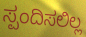
ಸ್ಪಂದಿಸಲಿಲ್ಲ